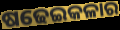
ଷଢେଇକଳାର